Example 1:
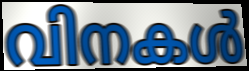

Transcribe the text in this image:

വിനകൾ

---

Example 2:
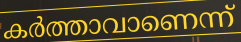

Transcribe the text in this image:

കർത്താവാണെന്ന്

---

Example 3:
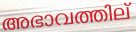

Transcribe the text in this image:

അഭാവത്തില്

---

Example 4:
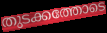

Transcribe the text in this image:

തുടക്കത്തോടെ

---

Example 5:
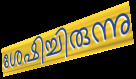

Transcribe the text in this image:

ശേഷിച്ചിരുന്നു